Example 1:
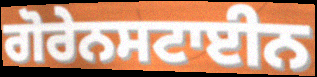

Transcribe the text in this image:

ਗੋਰੇਨਸਟਾਈਨ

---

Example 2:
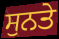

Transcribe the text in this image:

ਸੁਨਤੇ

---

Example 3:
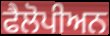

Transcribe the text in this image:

ਫੈਲੋਪੀਅਨ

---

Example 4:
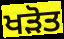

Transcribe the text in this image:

ਖੜੋਤ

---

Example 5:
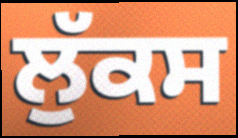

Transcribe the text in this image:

ਲੁੱਕਸ